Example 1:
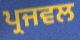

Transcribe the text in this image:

ਪ੍ਰਜਵਲ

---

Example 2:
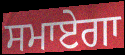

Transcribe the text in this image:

ਸਮਾਏਗਾ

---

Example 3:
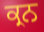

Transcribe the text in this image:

ਕ੍ਰਨ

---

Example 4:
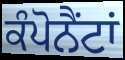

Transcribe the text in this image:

ਕੰਪੋਨੈਂਟਾਂ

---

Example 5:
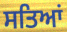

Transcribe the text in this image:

ਸਤਿਆਂ